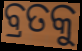
ବ୍ରତକୁ